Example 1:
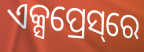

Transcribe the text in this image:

ଏକ୍ସପ୍ରେସ୍‌ରେ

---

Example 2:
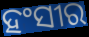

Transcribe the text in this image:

ହଂସୀର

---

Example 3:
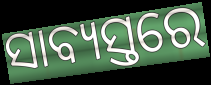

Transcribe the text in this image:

ସାବ୍ୟସ୍ତରେ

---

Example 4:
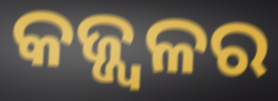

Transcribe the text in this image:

କଜ୍ଜ୍ୱଳର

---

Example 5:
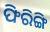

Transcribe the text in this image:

ଫିରିଙ୍ଗି